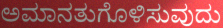
ಅಮಾನತುಗೊಳಿಸುವುದು